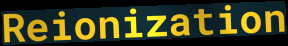
Reionization